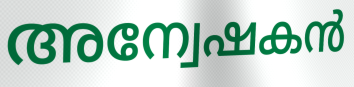
അന്വേഷകൻ